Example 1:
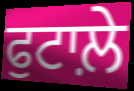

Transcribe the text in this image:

ਫੁਟਾਲ਼ੇ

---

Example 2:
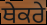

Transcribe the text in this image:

ਥੇਕਰੇ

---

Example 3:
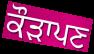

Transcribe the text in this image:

ਕੌੜਾਪਣ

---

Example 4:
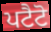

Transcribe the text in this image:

ਪਟੈਟੋ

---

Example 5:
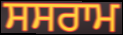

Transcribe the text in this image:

ਸਸਰਾਮ